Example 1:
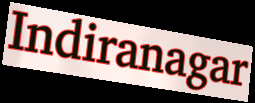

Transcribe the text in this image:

Indiranagar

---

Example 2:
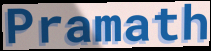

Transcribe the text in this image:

Pramath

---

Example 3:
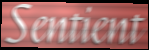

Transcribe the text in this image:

Sentient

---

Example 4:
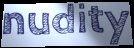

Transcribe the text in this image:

nudity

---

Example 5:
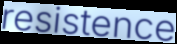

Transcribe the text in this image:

resistence